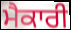
ਮੈਕਾਰੀ